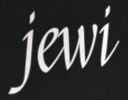
jewi